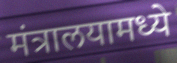
मंत्रालयामध्ये